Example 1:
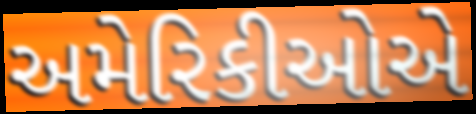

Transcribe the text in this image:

અમેરિકીઓએ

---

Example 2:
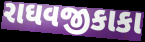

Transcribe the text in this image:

રાઘવજીકાકા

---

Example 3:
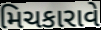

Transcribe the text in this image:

મિચકારાવે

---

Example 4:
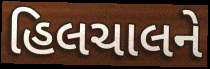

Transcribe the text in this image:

હિલચાલને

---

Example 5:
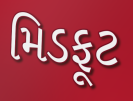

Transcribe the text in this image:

મિડફૂટ